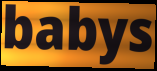
babys